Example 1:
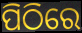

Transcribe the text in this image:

ପିଠିରେ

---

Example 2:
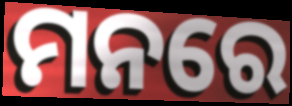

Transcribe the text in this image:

ମନରେ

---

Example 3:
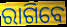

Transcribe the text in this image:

ରାଗିବେ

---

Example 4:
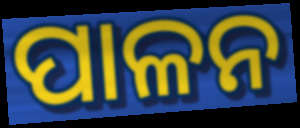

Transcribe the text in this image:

ପାଳନ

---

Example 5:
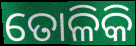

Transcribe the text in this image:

ତୋଳିକି